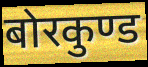
बोरकुण्ड